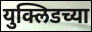
युक्लिडच्या